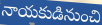
నాయకుడినుంచి